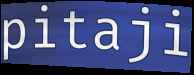
pitaji